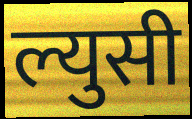
ल्युसी